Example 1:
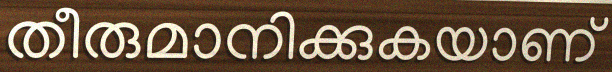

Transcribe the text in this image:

തീരുമാനിക്കുകയാണ്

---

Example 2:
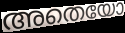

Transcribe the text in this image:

അതെയോ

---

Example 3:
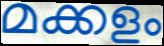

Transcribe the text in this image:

മക്കളം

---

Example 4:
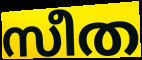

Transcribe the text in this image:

സീത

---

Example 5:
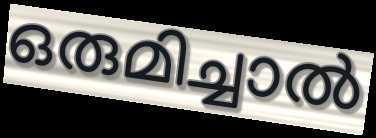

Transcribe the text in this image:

ഒരുമിച്ചാൽ